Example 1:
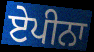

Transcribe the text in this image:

ਏਪੀਨਾ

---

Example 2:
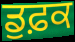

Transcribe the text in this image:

ਡੁਫ਼ਕ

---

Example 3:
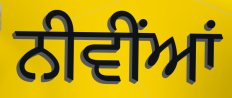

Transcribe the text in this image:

ਨੀਵੀਂਆਂ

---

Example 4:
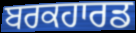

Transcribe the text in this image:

ਬਰਕਹਾਰਡ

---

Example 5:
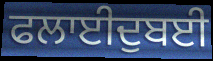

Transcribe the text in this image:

ਫਲਾਈਦੁਬਈ